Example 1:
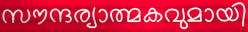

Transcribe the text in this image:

സൗന്ദര്യാത്മകവുമായി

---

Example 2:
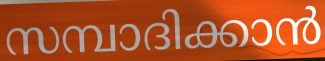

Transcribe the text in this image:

സമ്പാദിക്കാൻ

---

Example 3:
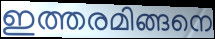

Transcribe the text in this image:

ഇത്തരമിങ്ങനെ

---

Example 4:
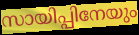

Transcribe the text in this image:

സായിപ്പിനേയും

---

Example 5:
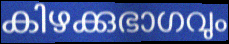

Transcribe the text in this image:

കിഴക്കുഭാഗവും